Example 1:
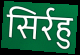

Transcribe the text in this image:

सिर्रहु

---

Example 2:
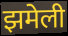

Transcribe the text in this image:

झमेली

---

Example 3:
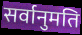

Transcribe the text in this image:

सर्वानुमति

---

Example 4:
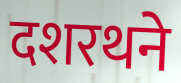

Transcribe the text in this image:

दशरथने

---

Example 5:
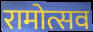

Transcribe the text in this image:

रामोत्सव